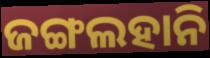
ଜଙ୍ଗଲହାନି